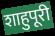
शाहुपूरी